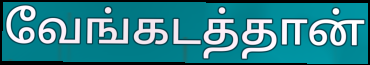
வேங்கடத்தான்